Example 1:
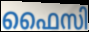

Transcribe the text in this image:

ഫൈസി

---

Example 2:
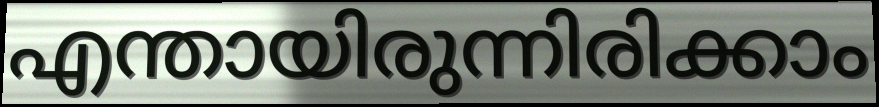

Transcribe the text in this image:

എന്തായിരുന്നിരിക്കാം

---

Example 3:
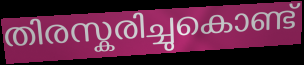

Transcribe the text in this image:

തിരസ്കരിച്ചുകൊണ്ട്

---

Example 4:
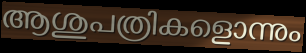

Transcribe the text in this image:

ആശുപത്രികളൊന്നും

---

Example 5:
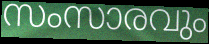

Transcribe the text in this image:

സംസാരവും